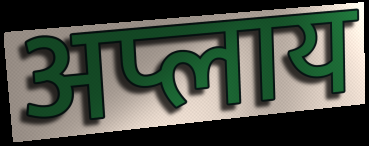
अप्लाय